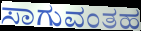
ಸಾಗುವಂತಹ